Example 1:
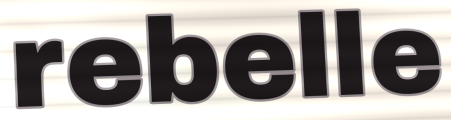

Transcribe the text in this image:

rebelle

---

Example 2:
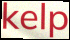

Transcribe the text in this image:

kelp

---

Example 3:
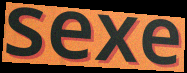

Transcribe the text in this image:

sexe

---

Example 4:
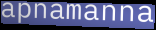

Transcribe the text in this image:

apnamanna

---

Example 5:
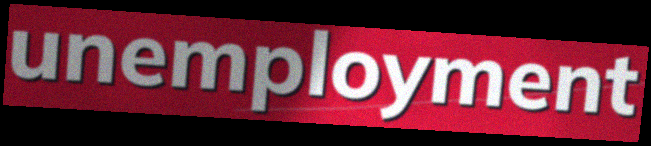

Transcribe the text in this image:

unemployment